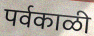
पर्वकाळी